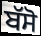
ਬੱਸੋ